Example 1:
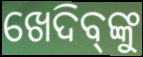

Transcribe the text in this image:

ଖେଦିବ୍‌ଙ୍କୁ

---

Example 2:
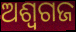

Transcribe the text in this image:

ଅଶ୍ୱଗଜ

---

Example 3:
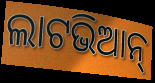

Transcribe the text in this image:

ଲାଟଭିଆନ୍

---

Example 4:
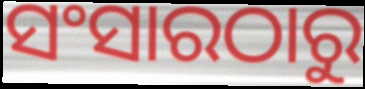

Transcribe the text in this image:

ସଂସାରଠାରୁ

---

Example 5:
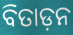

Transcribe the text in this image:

ବିତାଡ଼ନ